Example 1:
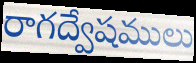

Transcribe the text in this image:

రాగద్వేషములు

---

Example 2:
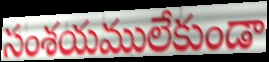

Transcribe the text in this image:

సంశయములేకుండా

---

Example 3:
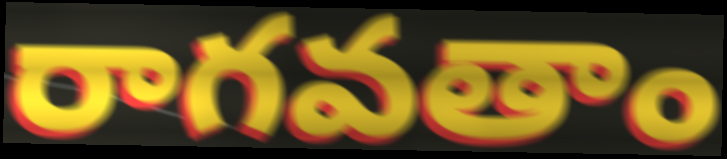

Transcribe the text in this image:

రాగవతాం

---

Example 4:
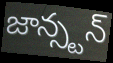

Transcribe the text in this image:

జాన్స్టన్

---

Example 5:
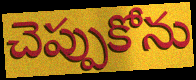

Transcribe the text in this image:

చెప్పుకోను